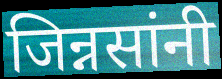
जिन्नसांनी